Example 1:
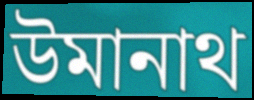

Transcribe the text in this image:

উমানাথ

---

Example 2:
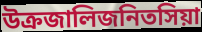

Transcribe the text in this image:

উক্রজালিজনিতসিয়া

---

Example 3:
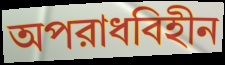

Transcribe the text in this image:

অপরাধবিহীন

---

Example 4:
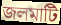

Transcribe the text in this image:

জলমাটি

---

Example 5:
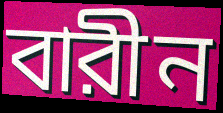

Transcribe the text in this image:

বারীন